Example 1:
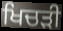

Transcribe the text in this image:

ਖਿਚੜੀ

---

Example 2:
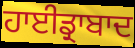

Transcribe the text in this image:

ਹਾਈਡ੍ਰਾਬਾਦ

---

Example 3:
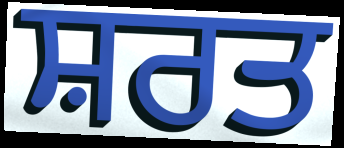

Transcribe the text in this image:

ਸ਼ਰਤ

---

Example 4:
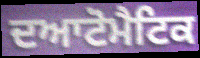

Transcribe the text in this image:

ਦਆਟੋਮੈਟਿਕ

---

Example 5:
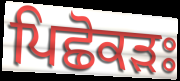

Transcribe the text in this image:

ਪਿਛੋਕੜਃ